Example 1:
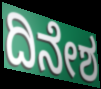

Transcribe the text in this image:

ದಿನೇಶ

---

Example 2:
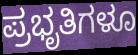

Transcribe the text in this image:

ಪ್ರಭೃತಿಗಳೂ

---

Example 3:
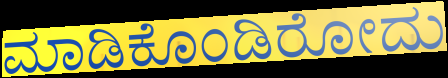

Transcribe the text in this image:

ಮಾಡಿಕೊಂಡಿರೋದು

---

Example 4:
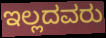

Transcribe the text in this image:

ಇಲ್ಲದವರು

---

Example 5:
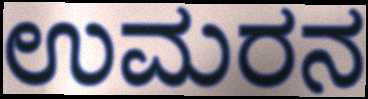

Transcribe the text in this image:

ಉಮರನ